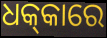
ଧକ୍‌କାରେ